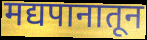
मद्यपानातून